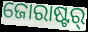
ଜୋରାଷ୍ଟର୍